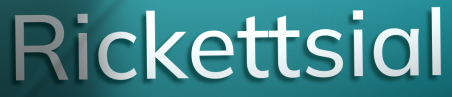
Rickettsial